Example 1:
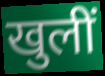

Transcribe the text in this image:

खुलीं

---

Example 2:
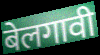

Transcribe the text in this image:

बेलगावी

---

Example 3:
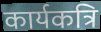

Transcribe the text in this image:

कार्यकत्रि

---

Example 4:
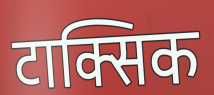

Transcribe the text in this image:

टाक्सिक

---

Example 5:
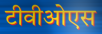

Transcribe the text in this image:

टीवीओएस